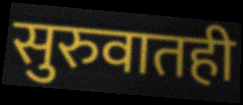
सुरुवातही